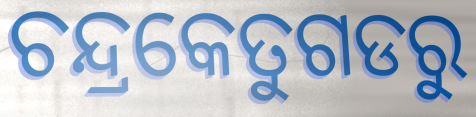
ଚନ୍ଦ୍ରକେତୁଗଡରୁ